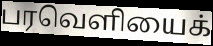
பரவெளியைக்